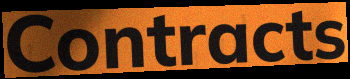
Contracts